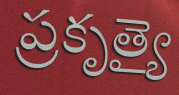
ప్రకృత్యై